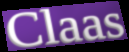
Claas